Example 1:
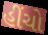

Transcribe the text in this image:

હીંચો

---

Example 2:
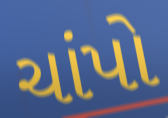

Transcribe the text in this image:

ચાંપો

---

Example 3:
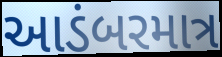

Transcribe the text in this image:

આડંબરમાત્ર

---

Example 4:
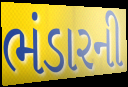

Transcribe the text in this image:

ભંડારની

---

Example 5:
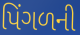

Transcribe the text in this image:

પિંગળની